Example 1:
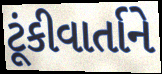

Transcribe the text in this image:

ટૂંકીવાર્તાને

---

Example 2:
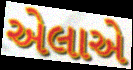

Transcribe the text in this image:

એલાએ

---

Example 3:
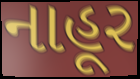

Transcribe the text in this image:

નાહૂર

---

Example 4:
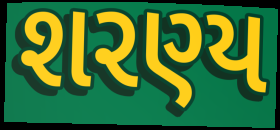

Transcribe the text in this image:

શરણ્ય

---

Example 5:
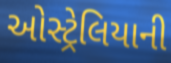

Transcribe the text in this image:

ઓસ્ટ્રેલિયાની